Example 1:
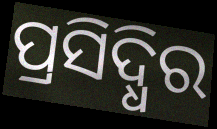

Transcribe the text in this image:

ପ୍ରସିଦ୍ଧିର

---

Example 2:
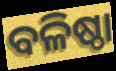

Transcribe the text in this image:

ବଳିଷ୍ଠା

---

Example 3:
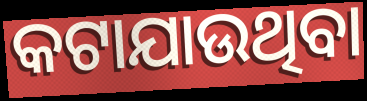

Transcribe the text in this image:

କଟାଯାଉଥିବା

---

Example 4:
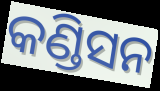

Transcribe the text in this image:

କଣ୍ଡିସନ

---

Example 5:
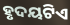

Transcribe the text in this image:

ହୃଦୟଟିଏ